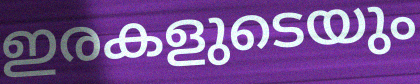
ഇരകളുടെയും